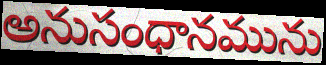
అనుసంధానమును